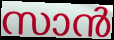
സാൻ